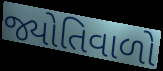
જ્યોતિવાળો